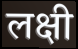
लक्षी